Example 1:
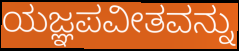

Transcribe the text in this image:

ಯಜ್ಞಪವೀತವನ್ನು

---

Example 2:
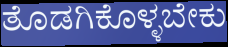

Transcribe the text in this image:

ತೊಡಗಿಕೊಳ್ಳಬೇಕು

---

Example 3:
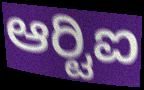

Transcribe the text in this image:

ಆರ್‍ಟಿಐ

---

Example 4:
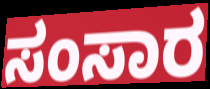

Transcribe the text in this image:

ಸಂಸಾರ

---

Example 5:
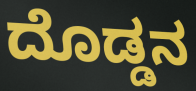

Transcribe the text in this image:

ದೊಡ್ಡನ